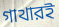
গাথারই